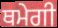
ਥਮੇਗੀ